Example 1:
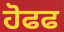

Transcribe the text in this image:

ਹੋਫਫ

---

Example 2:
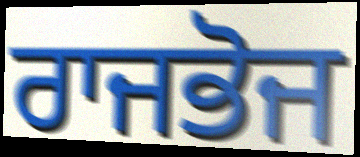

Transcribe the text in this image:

ਰਾਜਭੋਜ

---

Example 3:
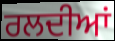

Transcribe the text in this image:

ਰਲਦੀਆਂ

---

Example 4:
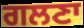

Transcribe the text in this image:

ਗਲਣਾ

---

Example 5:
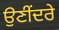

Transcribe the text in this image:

ਉਣੀਂਦਰੇ